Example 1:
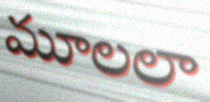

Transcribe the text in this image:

మూలలా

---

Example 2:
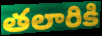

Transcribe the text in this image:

తలారికి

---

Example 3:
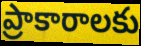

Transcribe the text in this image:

ప్రాకారాలకు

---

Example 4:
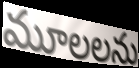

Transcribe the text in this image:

మూలలను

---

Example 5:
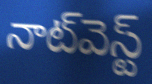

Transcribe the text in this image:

నాట్‌వెస్ట్